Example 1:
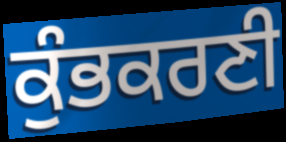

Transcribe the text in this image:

ਕੁੰਭਕਰਣੀ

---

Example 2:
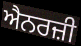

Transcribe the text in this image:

ਐਨਰਜ਼ੀ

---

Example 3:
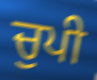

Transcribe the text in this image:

ਚੁਪੀ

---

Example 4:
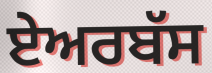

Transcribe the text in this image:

ਏਅਰਬੱਸ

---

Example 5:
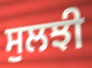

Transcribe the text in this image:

ਸੁਲਝੀ